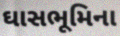
ઘાસભૂમિના